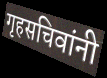
गृहसचिवांनी